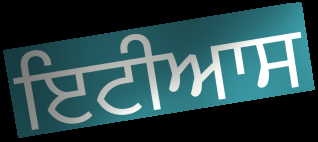
ਇਟੀਆਸ